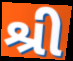
શ્રી